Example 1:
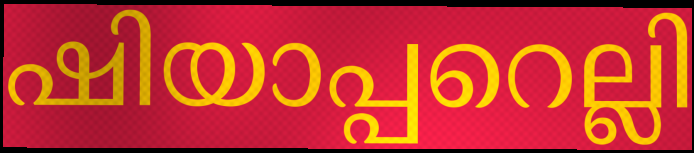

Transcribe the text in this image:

ഷിയാപ്പറെല്ലി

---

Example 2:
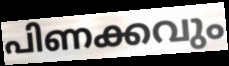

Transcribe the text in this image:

പിണക്കവും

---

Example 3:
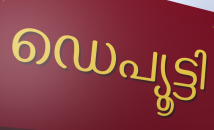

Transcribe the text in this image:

ഡെപ്യൂട്ടി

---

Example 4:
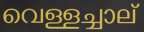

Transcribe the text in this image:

വെള്ളച്ചാല്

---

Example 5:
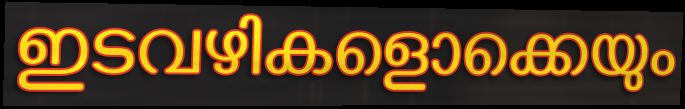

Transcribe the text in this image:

ഇടവഴികളൊക്കെയും